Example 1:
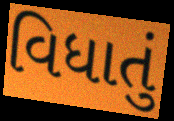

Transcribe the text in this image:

વિધાતું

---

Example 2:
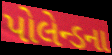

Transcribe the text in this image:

પોલેન્ડના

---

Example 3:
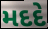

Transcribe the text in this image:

મદદે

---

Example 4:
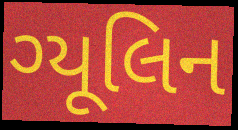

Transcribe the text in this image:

ગ્યૂલિન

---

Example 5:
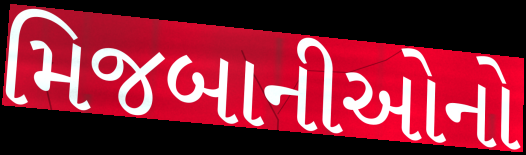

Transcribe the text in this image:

મિજબાનીઓનો